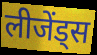
लीजेंड्स